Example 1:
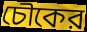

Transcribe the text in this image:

চৌকের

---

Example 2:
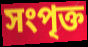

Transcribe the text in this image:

সংপৃক্ত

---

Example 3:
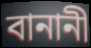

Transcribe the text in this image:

বানানী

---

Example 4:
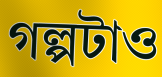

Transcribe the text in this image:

গল্পটাও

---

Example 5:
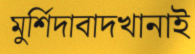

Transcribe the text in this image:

মুর্শিদাবাদখানাই